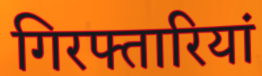
गिरफ्तारियां